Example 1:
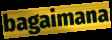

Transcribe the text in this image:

bagaimana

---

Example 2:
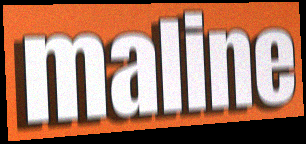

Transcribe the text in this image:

maline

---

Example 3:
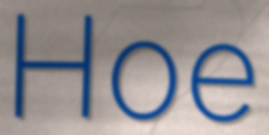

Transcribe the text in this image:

Hoe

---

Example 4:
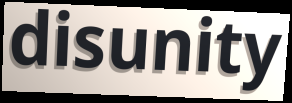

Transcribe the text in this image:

disunity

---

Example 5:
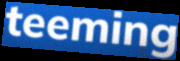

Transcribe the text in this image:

teeming